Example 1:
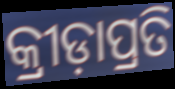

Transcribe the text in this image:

କ୍ରୀଡ଼ାପ୍ରତି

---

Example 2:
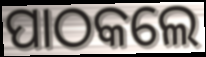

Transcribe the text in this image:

ପାଠକଲେ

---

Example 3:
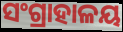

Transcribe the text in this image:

ସଂଗ୍ରାହାଳୟ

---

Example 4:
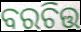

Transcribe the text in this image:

ବରଚିତ୍ତ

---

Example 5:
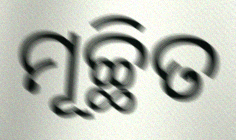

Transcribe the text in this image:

ମୂଚ୍ଛିତ